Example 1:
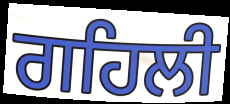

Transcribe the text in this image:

ਗਹਿਲੀ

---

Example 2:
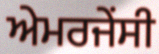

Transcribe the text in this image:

ਅੇਮਰਜੇਂਸੀ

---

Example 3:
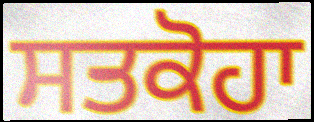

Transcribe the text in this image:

ਸਤਕੋਹਾ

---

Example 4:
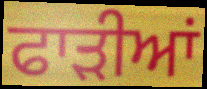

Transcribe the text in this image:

ਫਾੜੀਆਂ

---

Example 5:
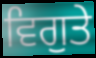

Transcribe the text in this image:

ਵਿਗੁਤੇ